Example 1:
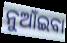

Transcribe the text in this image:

ନୁଆଁଇବା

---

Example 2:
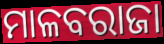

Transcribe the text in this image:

ମାଳବରାଜା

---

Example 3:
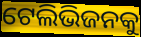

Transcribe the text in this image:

ଟେଲିଭିଜନକୁ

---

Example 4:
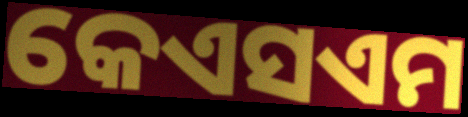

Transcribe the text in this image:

କେଏସଏମ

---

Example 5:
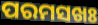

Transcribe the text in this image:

ପରମସଖଃ